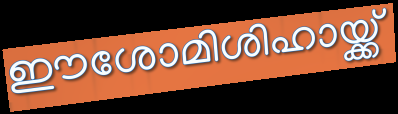
ഈശോമിശിഹായ്ക്ക്